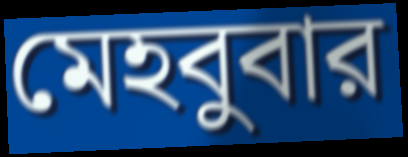
মেহবুবার